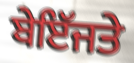
ਬੇਇੱਜਤੇ